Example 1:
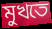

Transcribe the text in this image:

মুখতে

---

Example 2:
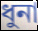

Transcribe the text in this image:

ধুনা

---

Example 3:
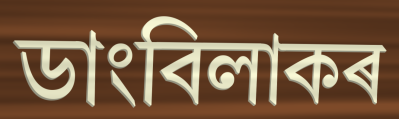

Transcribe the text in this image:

ডাংবিলাকৰ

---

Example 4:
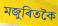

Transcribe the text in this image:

মজুৰিতকৈ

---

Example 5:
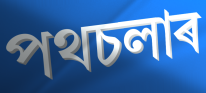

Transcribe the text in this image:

পথচলাৰ